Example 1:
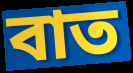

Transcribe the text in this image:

বাত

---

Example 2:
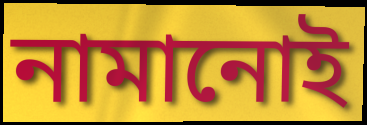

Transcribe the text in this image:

নামানোই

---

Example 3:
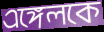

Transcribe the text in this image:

এঙ্গেলকে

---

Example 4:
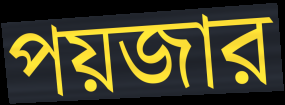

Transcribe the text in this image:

পয়জার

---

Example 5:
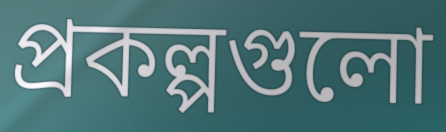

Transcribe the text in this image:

প্রকল্পগুলো